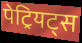
पेट्रियट्स